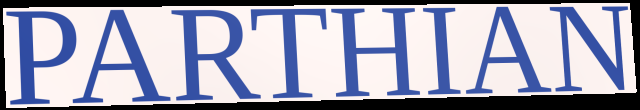
PARTHIAN